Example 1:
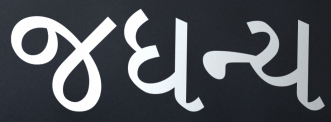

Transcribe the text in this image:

જધન્ય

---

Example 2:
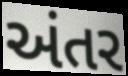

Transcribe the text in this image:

અંતર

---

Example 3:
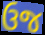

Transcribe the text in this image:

ઉજ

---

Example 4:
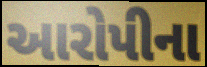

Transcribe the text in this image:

આરોપીના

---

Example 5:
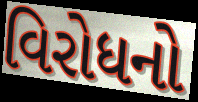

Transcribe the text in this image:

વિરોધનો